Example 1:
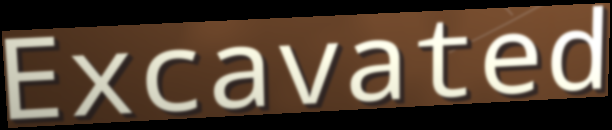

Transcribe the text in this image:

Excavated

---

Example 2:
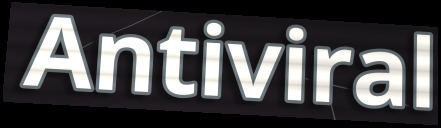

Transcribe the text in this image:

Antiviral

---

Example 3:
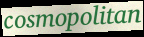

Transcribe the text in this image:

cosmopolitan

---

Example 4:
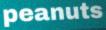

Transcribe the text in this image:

peanuts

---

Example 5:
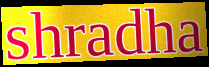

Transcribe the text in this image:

shradha